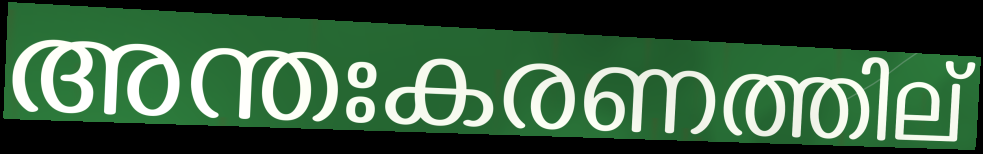
അന്തഃകരണത്തില്